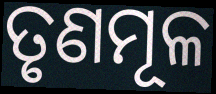
ତୃଣମୂଳ